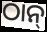
ଠାନ୍